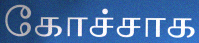
கோச்சாக